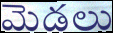
మెడలు